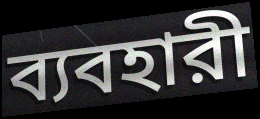
ব্যবহারী